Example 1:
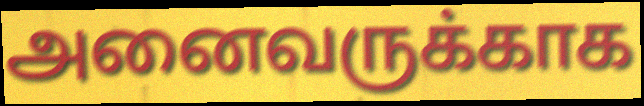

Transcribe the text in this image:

அனைவருக்காக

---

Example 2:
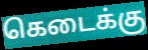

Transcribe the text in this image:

கெடைக்கு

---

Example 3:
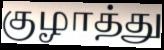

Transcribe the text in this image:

குழாத்து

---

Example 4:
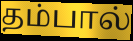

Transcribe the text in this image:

தம்பால்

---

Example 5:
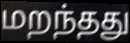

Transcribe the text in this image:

மறந்தது